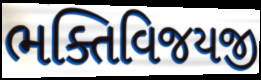
ભક્તિવિજયજી